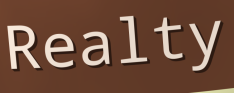
Realty